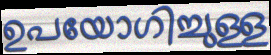
ഉപയോഗിച്ചുള്ള